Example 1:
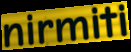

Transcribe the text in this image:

nirmiti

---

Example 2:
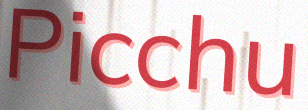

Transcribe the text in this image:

Picchu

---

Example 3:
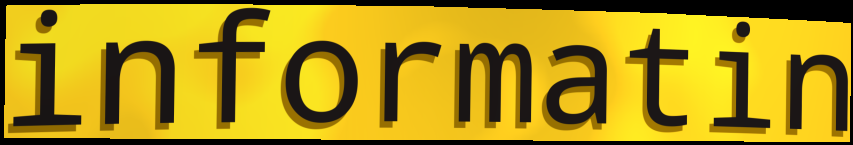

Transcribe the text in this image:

informatin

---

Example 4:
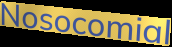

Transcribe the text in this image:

Nosocomial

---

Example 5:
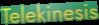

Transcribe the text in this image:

Telekinesis